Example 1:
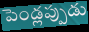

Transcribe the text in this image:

పెండ్లప్పుడు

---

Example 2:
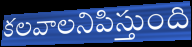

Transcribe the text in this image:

కలవాలనిపిస్తుంది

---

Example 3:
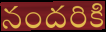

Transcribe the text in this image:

నందరికి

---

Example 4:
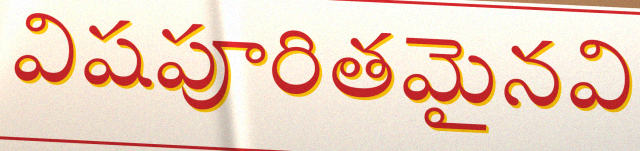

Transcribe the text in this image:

విషపూరితమైనవి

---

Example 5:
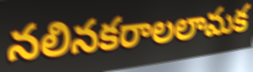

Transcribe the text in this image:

నలినకరాలలామక